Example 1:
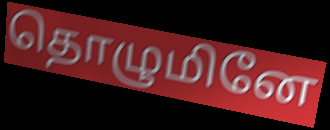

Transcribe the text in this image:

தொழுமினே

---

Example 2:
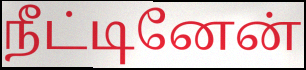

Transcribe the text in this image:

நீட்டினேன்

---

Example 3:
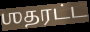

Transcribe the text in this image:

ஶதரட்ட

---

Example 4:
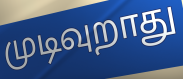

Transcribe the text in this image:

முடிவுறாது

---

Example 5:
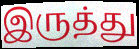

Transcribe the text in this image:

இருத்து